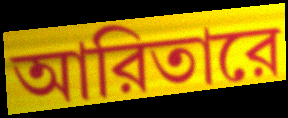
আরিতারে